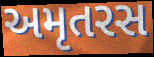
અમૃતરસ